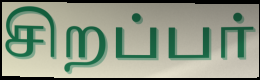
சிறப்பர்